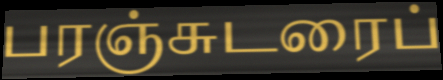
பரஞ்சுடரைப்